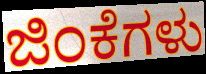
ಜಿಂಕೆಗಳು